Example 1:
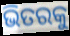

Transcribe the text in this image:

ଭିତରକୁ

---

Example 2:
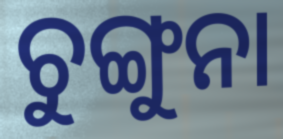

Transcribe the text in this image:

ଚୁଙ୍ଗୁନା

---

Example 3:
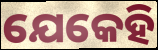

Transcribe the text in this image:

ଯେକେହି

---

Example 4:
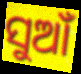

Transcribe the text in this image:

ସୁଆଁ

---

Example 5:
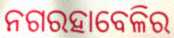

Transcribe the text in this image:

ନଗରହାବେଳିର